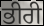
ਭੀਰੀ